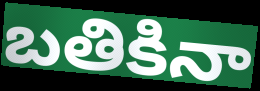
బతికినా